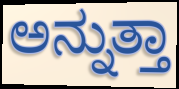
ಅನ್ನುತ್ತಾ